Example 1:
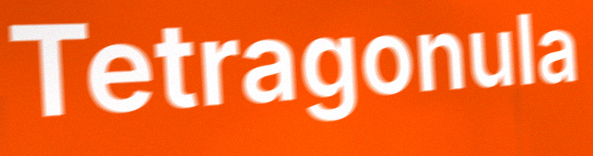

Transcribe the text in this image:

Tetragonula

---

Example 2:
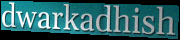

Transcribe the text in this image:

dwarkadhish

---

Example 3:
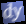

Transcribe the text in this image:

dy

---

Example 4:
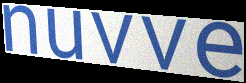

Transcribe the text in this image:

nuvve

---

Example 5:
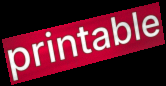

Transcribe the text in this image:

printable